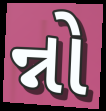
ન્નો